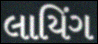
લાયિંગ